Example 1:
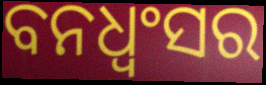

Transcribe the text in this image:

ବନଧ୍ଵଂସର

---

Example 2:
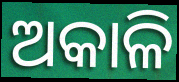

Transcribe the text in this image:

ଅକାଳି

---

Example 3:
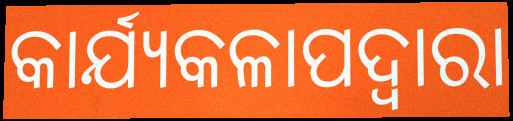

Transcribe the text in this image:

କାର୍ଯ୍ୟକଳାପଦ୍ବାରା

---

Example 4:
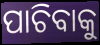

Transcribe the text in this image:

ପାଚିବାକୁ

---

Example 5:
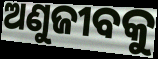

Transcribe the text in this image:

ଅଣୁଜୀବକୁ